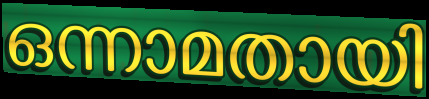
ഒന്നാമതായി